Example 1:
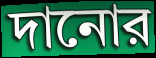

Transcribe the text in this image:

দানোর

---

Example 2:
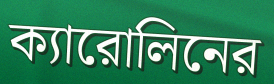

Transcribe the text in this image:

ক্যারোলিনের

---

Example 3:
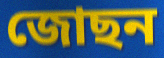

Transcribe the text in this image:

জোছন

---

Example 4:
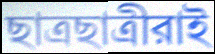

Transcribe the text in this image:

ছাত্রছাত্রীরাই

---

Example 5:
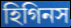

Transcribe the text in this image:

হিগিনস